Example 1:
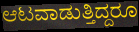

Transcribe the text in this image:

ಆಟವಾಡುತ್ತಿದ್ದರೂ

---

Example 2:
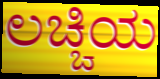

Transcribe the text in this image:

ಲಚ್ಚಿಯ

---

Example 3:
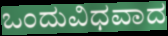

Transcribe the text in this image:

ಒಂದುವಿಧವಾದ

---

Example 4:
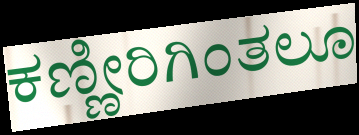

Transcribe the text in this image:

ಕಣ್ಣೀರಿಗಿಂತಲೂ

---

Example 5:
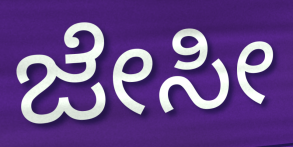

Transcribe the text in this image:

ಜೇಸೀ